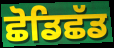
ਛੋਡਿਛੱਡ